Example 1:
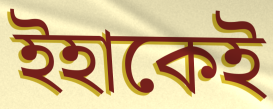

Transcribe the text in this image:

ইহাকেই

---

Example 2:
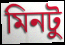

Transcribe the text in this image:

মিনটু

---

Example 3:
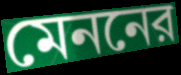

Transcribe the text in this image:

মেননের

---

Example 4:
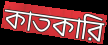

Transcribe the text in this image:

কাতকারি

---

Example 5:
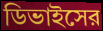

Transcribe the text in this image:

ডিভাইসের